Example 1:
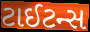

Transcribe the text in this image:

ટાઈટન્સ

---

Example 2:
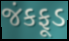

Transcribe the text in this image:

જંકફૂડ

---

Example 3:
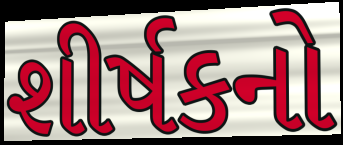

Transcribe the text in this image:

શીર્ષકનો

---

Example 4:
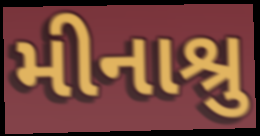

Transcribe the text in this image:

મીનાશ્રુ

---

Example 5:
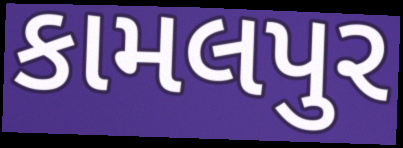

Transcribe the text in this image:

કામલપુર